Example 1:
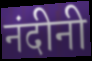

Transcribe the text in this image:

नंदीनी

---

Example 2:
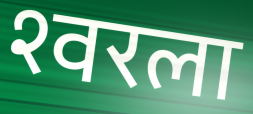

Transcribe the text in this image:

श्वरला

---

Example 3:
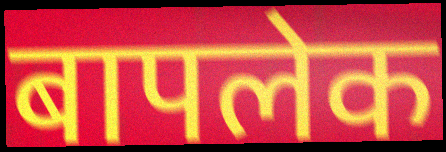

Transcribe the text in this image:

बापलेक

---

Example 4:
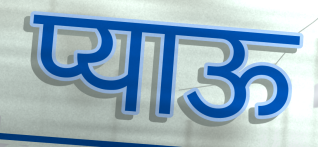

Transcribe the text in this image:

प्याऊ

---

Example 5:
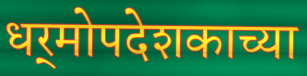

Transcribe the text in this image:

धर्मोपदेशकाच्या